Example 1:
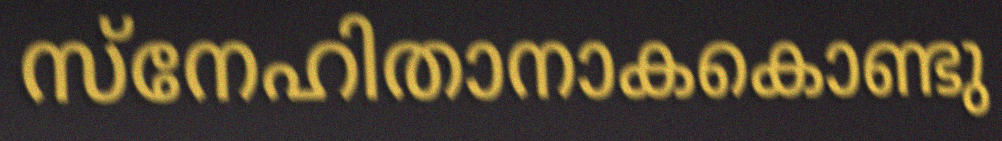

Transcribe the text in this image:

സ്നേഹിതാനാകകൊണ്ടു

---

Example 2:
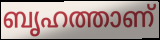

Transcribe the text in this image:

ബൃഹത്താണ്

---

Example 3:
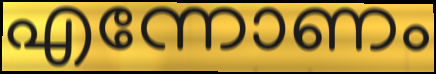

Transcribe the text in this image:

എന്നോണം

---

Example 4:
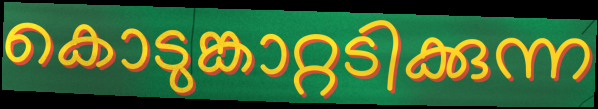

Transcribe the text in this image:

കൊടുങ്കാറ്റടിക്കുന്ന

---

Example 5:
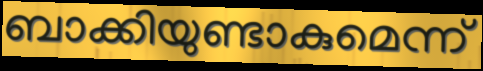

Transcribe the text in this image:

ബാക്കിയുണ്ടാകുമെന്ന്